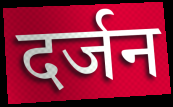
दर्जन